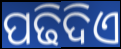
ପଢିଦିଏ